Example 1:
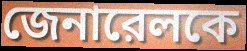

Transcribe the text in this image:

জেনারেলকে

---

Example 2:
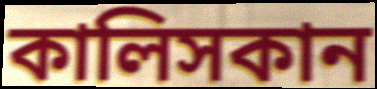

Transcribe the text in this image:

কালিসকান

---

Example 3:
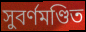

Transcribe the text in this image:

সুবর্ণমণ্ডিত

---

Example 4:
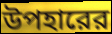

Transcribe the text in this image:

উপহারের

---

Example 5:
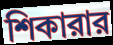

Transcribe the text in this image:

শিকারার